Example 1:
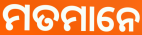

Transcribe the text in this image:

ମତମାନେ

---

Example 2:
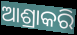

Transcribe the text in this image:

ଆଶ୍ରାକରି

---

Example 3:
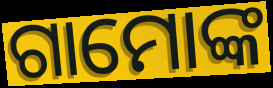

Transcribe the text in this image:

ଗାମୋଙ୍କ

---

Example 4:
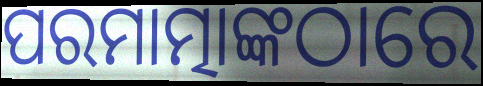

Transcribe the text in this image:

ପରମାତ୍ମାଙ୍କଠାରେ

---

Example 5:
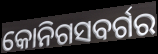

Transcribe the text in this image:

କୋନିଗସବର୍ଗର